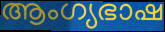
ആംഗ്യഭാഷ